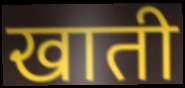
खाती